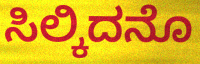
ಸಿಲ್ಕಿದನೊ